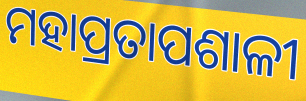
ମହାପ୍ରତାପଶାଳୀ